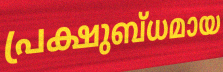
പ്രക്ഷുബ്ധമായ